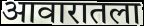
आवारातला